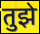
तुझे